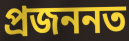
প্ৰজননত